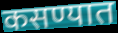
कसण्यात